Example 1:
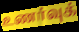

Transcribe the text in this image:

உணர்வுக்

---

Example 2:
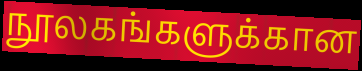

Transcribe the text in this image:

நூலகங்களுக்கான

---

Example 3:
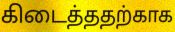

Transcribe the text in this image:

கிடைத்ததற்காக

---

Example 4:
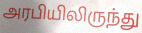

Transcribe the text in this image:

அரபியிலிருந்து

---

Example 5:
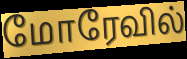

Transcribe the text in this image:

மோரேவில்